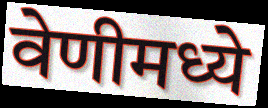
वेणीमध्ये